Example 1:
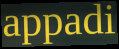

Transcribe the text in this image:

appadi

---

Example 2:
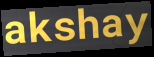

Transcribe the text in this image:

akshay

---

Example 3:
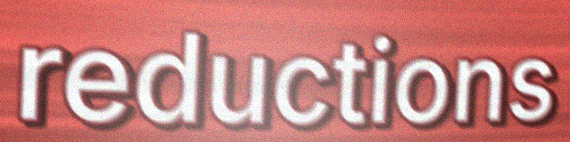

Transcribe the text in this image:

reductions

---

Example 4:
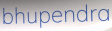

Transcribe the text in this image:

bhupendra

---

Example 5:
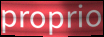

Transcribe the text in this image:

proprio